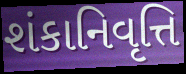
શંકાનિવૃત્તિ